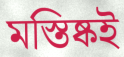
মস্তিষ্কই